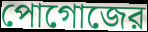
পোগোজের